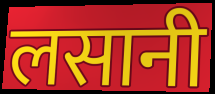
लसानी